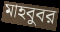
মাহবুবর